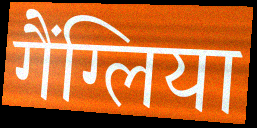
गैंग्लिया